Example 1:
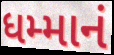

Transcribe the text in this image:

ધમ્માનં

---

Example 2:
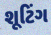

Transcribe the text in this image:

શૂટિંગ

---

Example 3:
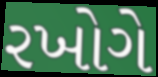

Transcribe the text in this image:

રખોગે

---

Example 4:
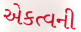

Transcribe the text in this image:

એકત્વની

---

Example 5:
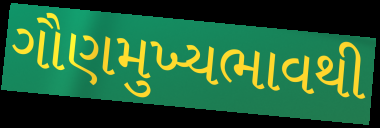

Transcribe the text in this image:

ગૌણમુખ્યભાવથી